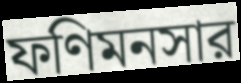
ফণিমনসার